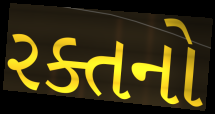
રક્તનો